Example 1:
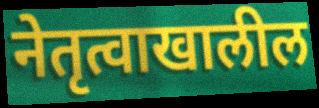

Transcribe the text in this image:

नेतृत्वाखालील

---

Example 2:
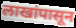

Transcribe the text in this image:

लाखांपासून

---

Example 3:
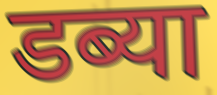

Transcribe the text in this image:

डब्या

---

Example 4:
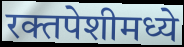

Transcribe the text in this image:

रक्तपेशीमध्ये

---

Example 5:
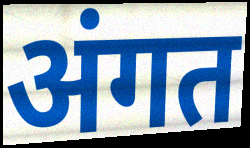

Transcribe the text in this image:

अंगत